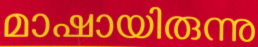
മാഷായിരുന്നു